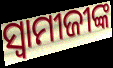
ସ୍ଵାମୀଜୀଙ୍କ